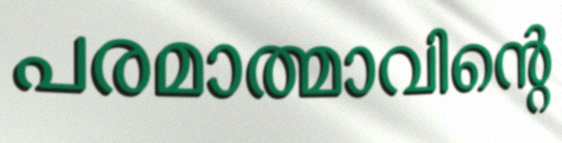
പരമാത്മാവിന്റെ